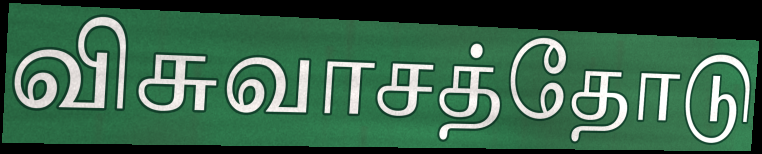
விசுவாசத்தோடு